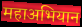
महाअभियान